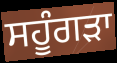
ਸਹੂੰਗੜਾ